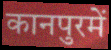
कानपुरमें